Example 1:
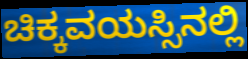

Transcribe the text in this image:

ಚಿಕ್ಕವಯಸ್ಸಿನಲ್ಲಿ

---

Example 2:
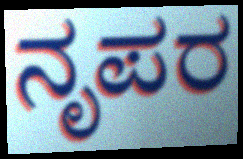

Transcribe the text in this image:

ನೃಪರ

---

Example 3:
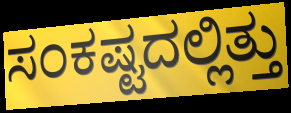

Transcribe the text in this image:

ಸಂಕಷ್ಟದಲ್ಲಿತ್ತು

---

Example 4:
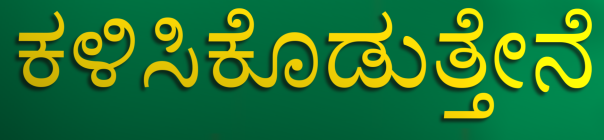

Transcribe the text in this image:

ಕಳಿಸಿಕೊಡುತ್ತೇನೆ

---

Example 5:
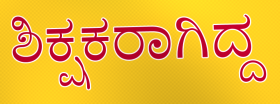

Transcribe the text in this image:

ಶಿಕ್ಷಕರಾಗಿದ್ದ